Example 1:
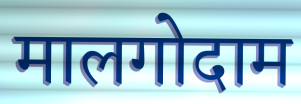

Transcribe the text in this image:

मालगोदाम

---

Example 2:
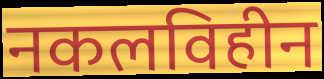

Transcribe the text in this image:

नकलविहीन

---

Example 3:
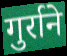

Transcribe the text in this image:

गुर्राने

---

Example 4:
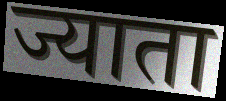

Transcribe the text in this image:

ज्याता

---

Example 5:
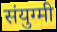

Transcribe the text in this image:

संयुग्मी